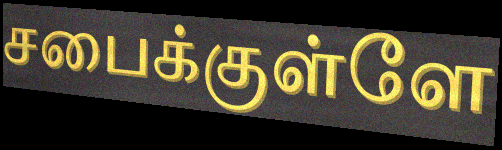
சபைக்குள்ளே